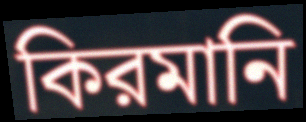
কিরমানি